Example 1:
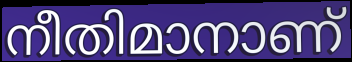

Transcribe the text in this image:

നീതിമാനാണ്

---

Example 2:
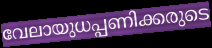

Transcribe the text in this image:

വേലായുധപ്പണിക്കരുടെ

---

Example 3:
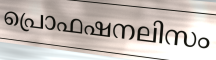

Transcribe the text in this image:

പ്രൊഫഷനലിസം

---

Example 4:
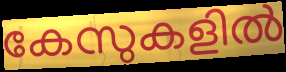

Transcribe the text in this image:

കേസുകളിൽ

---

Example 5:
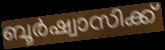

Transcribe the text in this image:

ബൂർഷ്വാസിക്ക്